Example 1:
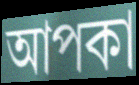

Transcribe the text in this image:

আপকা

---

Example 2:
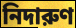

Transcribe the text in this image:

নিদারুণ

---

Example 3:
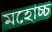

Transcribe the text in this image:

মহোচ্চ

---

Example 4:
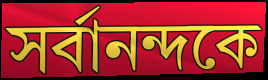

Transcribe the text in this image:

সর্বানন্দকে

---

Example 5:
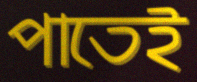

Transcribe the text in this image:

পাতেই